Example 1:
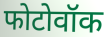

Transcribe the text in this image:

फोटोवॉक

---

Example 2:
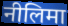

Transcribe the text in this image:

नीलिमा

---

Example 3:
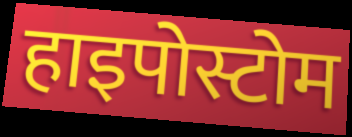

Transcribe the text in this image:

हाइपोस्टोम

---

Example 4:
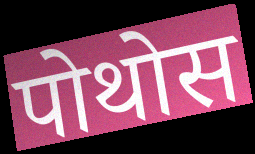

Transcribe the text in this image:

पोथोस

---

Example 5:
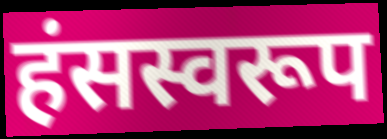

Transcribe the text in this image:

हंसस्वरूप